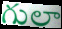
గులా